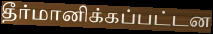
தீர்மானிக்கப்பட்டன